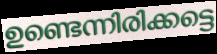
ഉണ്ടെന്നിരിക്കട്ടെ